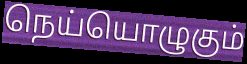
நெய்யொழுகும்